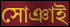
সোঞাই